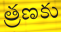
త్రణకు